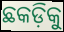
ଛକଡ଼ିକୁ